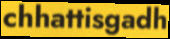
chhattisgadh